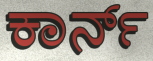
ಕಾರ್ನ್